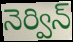
నెర్విన్